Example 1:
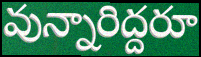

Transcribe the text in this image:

వున్నారిద్దరూ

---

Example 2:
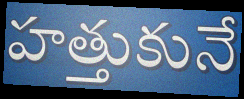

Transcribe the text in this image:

హత్తుకునే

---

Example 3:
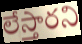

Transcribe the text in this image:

లేస్తారని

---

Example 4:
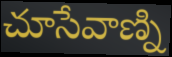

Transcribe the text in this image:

చూసేవాణ్ని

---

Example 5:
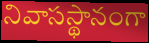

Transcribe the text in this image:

నివాసస్థానంగా